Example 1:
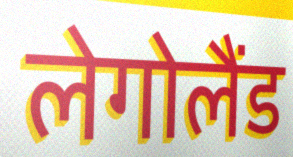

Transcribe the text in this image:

लेगोलैंड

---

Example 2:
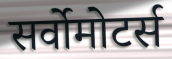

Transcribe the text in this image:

सर्वोमोटर्स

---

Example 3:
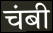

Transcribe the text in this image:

चंबी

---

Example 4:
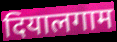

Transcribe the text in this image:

दियालगाम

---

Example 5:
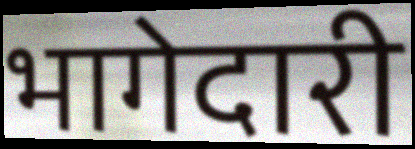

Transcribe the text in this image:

भागेदारी